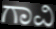
ಗಾವಿ